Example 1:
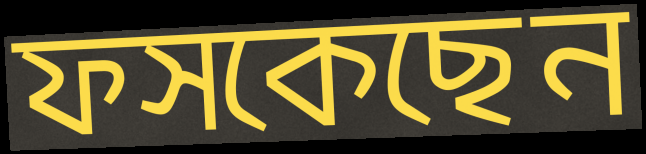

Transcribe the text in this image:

ফসকেছেন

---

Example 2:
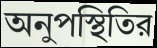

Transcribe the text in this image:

অনুপস্থিতির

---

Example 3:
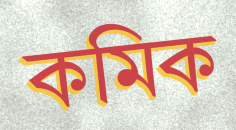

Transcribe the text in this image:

কমিক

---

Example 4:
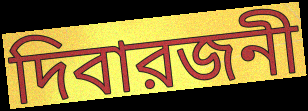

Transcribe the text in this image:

দিবারজনী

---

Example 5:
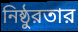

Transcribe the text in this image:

নিষ্ঠুরতার